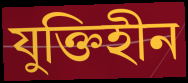
যুক্তিহীন